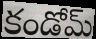
కండోమ్